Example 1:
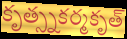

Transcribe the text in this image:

కృత్స్నకర్మకృత్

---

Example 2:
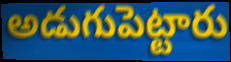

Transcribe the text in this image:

అడుగుపెట్టారు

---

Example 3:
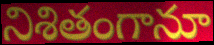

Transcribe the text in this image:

నిశితంగానూ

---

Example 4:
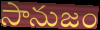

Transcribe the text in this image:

సానుజం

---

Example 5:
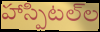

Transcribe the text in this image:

హాస్పిటల్‌ల